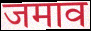
जमाव